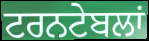
ਟਰਨਟੇਬਲਾਂ